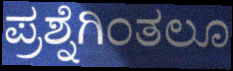
ಪ್ರಶ್ನೆಗಿಂತಲೂ